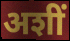
अशीं